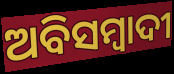
ଅବିସମ୍ବାଦୀ